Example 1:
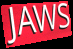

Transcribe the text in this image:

JAWS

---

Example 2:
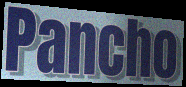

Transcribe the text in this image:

Pancho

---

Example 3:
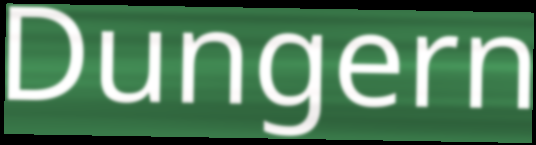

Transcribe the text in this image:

Dungern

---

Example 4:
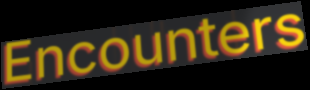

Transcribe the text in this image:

Encounters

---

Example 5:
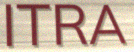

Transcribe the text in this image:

ITRA